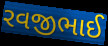
રવજીભાઈ